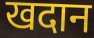
खदान